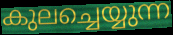
കുലച്ചെയ്യുന്ന